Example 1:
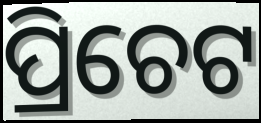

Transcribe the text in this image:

ପ୍ରିଚେଟ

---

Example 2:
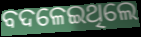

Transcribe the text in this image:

ବଦଳେଇଥିଲେ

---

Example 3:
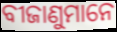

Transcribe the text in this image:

ବୀଜାଣୁମାନେ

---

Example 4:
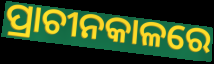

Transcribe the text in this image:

ପ୍ରାଚୀନକାଳରେ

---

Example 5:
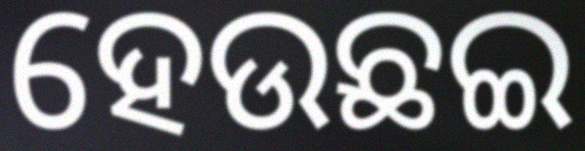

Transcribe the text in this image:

ହେଉଛଇ